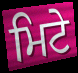
ਮਿਟੇ